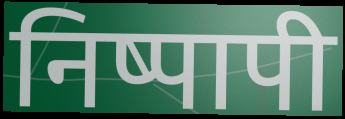
निष्पापी